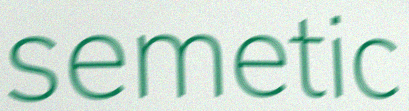
semetic